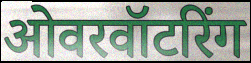
ओवरवॉटरिंग